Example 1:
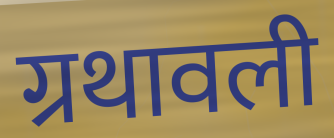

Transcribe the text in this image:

ग्रथावली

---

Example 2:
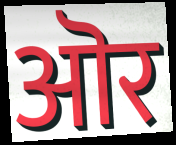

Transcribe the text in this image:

ऒर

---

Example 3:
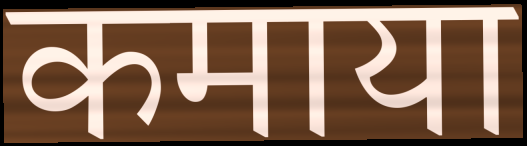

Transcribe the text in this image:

कमाया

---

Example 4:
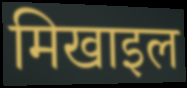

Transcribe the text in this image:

मिखाइल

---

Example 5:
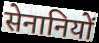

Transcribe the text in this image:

सेनानियों